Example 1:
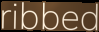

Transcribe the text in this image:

ribbed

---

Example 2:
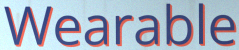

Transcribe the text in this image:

Wearable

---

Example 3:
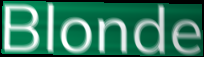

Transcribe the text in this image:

Blonde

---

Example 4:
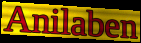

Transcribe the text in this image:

Anilaben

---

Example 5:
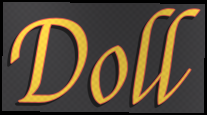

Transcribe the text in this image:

Doll